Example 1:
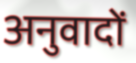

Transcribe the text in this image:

अनुवादों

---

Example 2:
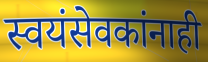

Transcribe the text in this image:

स्वयंसेवकांनाही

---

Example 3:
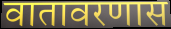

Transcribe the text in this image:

वातावरणास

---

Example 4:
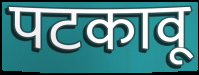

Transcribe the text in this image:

पटकावू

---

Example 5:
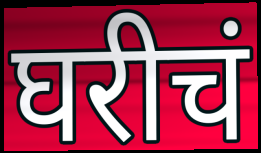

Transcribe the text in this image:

घरीचं